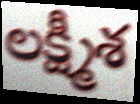
లక్ష్మీశ